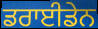
ਡਰਾਈਡੇਨ